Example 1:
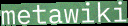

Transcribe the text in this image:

metawiki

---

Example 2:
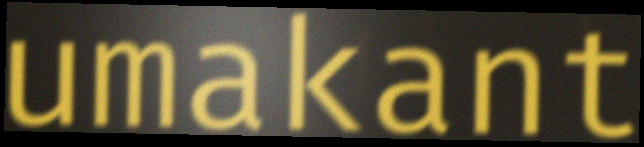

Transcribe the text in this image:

umakant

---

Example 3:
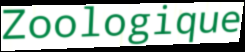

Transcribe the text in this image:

Zoologique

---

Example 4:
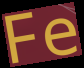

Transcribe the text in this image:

Fe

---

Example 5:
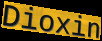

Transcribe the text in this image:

Dioxin